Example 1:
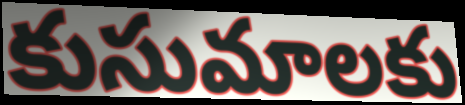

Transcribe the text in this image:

కుసుమాలకు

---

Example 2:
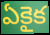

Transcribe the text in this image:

ఏకైక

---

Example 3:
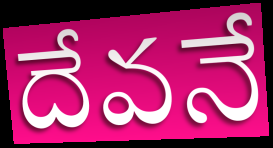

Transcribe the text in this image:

దేవనే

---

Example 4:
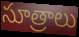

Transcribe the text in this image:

సూత్రాలు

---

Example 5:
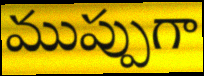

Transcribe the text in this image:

ముప్పుగా